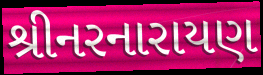
શ્રીનરનારાયણ